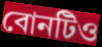
বোনটিও